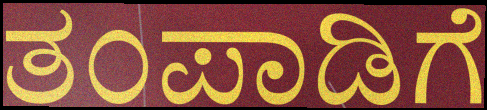
ತಂಪಾಡಿಗೆ